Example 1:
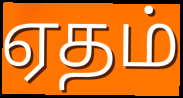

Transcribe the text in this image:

ஏதம்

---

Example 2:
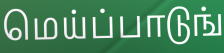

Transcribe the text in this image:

மெய்ப்பாடுங்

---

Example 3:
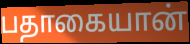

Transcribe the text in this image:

பதாகையான்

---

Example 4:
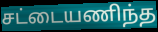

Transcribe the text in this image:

சட்டையணிந்த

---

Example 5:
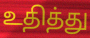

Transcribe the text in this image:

உதித்து